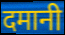
दमानी